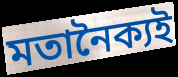
মতানৈক্যই